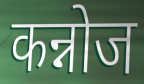
कन्नोज